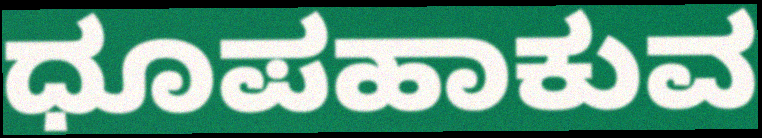
ಧೂಪಹಾಕುವ